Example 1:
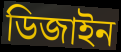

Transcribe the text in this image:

ডিজাইন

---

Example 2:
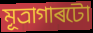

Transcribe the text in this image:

মূত্ৰাগাৰটো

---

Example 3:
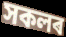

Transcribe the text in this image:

সকলৰ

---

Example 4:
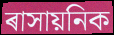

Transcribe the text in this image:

ৰাসায়নিক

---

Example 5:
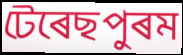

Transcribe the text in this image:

টেৰেছপুৰম